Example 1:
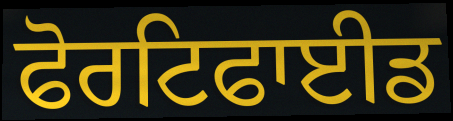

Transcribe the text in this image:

ਫੋਰਟਿਫਾਈਡ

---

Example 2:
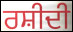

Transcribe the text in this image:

ਰਸ਼ੀਦੀ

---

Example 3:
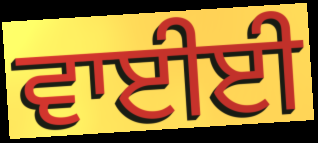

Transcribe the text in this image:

ਵਾਈਈ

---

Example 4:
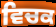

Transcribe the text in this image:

ਵਿਚਕ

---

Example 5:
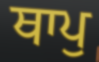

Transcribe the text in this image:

ਥਾਪੁ